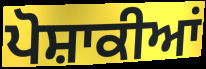
ਪੋਸ਼ਾਕੀਆਂ